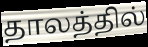
தாலத்தில்